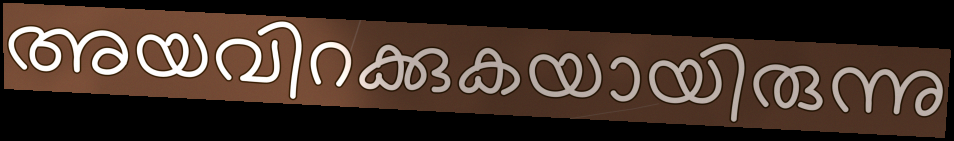
അയവിറക്കുകയായിരുന്നു